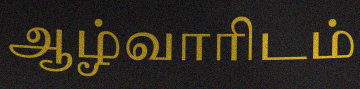
ஆழ்வாரிடம்